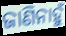
ଜାଣିନାହୁଁ